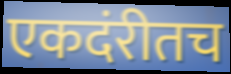
एकदंरीतच